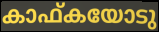
കാഫ്കയോടു